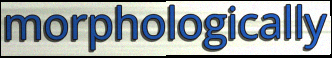
morphologically